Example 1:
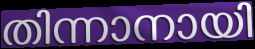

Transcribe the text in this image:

തിന്നാനായി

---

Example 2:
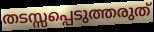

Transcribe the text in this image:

തടസ്സപ്പെടുത്തരുത്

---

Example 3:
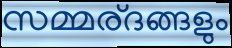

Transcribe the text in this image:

സമ്മര്ദങ്ങളും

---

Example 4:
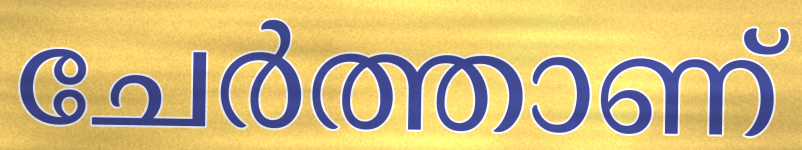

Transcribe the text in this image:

ചേർത്താണ്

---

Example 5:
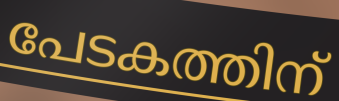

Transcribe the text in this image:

പേടകത്തിന്